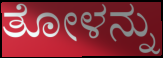
ತೋಳನ್ನು